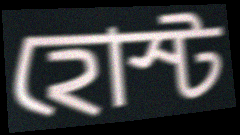
হোস্ট